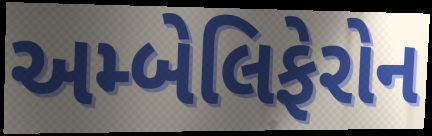
અમ્બેલિફેરોન